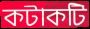
কটাকটি